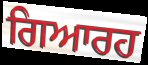
ਗਿਆਰਹ